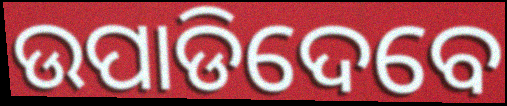
ଉପାଡିଦେବେ